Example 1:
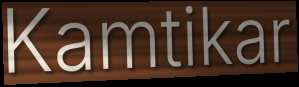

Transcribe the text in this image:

Kamtikar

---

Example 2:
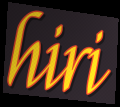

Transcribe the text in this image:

hiri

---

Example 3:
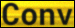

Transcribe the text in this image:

Conv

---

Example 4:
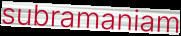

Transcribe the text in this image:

subramaniam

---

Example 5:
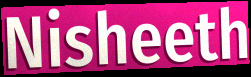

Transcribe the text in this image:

Nisheeth